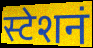
स्टेशनं